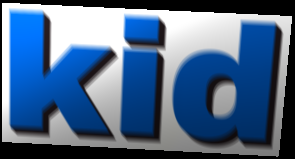
kid